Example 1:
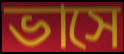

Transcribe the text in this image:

ভাসে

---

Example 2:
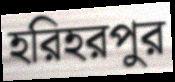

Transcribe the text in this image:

হরিহরপুর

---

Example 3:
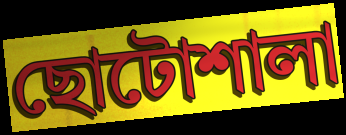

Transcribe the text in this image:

ছোটোশালা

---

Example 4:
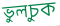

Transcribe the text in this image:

ভুলচুক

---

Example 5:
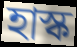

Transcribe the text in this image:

হাস্ক